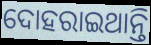
ଦୋହରାଇଥାନ୍ତି